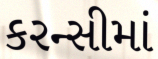
કરન્સીમાં